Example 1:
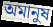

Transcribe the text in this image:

অমানুষ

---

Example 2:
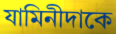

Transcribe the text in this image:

যামিনীদাকে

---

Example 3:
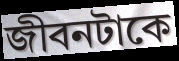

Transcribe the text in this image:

জীবনটাকে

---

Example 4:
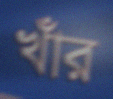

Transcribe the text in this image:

খাঁর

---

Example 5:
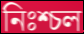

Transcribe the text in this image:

নিঃশ্চল